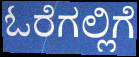
ಓರೆಗಲ್ಲಿಗೆ